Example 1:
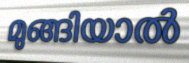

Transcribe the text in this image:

മുങ്ങിയാൽ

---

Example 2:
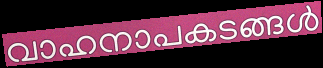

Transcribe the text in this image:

വാഹനാപകടങ്ങൾ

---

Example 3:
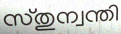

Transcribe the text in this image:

സ്തുന്വന്തി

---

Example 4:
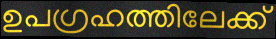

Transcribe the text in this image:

ഉപഗ്രഹത്തിലേക്ക്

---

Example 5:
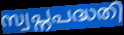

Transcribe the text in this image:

സ്വപ്നപദ്ധതി